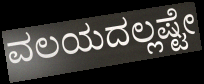
ವಲಯದಲ್ಲಷ್ಟೇ